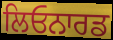
ਲਿਓਨਾਰਡ